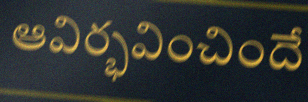
ఆవిర్భవించిందే